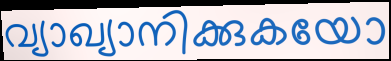
വ്യാഖ്യാനിക്കുകയോ